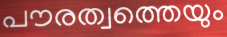
പൗരത്വത്തെയും